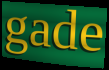
gade